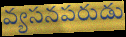
వ్యసనపరుడు